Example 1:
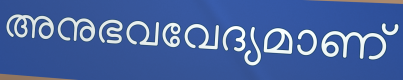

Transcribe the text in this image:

അനുഭവവേദ്യമാണ്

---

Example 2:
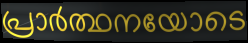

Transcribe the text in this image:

പ്രാർത്ഥനയോടെ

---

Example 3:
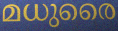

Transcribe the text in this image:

മധുരൈ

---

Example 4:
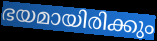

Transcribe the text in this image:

ഭയമായിരിക്കും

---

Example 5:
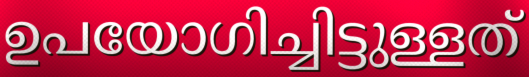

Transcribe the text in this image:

ഉപയോഗിച്ചിട്ടുള്ളത്